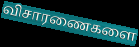
விசாரணைகளை